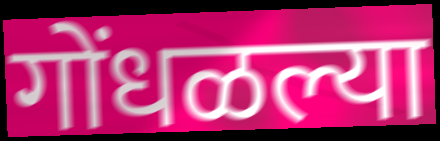
गोंधळल्या